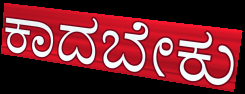
ಕಾದಬೇಕು